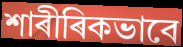
শাৰীৰিকভাবে